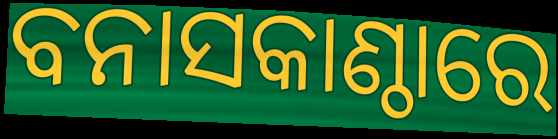
ବନାସକାଣ୍ଠାରେ